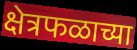
क्षेत्रफळाच्या